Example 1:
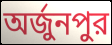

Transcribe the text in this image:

অর্জুনপুর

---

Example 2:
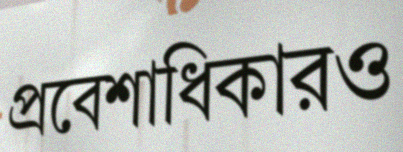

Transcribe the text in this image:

প্রবেশাধিকারও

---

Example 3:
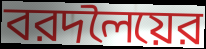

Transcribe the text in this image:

বরদলৈয়ের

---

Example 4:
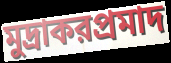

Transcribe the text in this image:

মুদ্রাকরপ্রমাদ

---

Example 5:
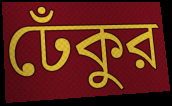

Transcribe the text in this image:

ঢেঁকুর